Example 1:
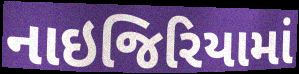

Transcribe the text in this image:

નાઇજિરિયામાં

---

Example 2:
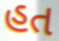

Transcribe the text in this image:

હત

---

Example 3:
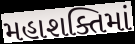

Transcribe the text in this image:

મહાશક્તિમાં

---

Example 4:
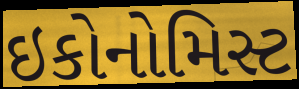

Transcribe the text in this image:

ઇકોનોમિસ્ટ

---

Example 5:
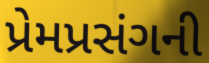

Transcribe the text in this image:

પ્રેમપ્રસંગની